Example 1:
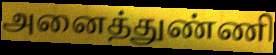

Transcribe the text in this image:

அனைத்துண்ணி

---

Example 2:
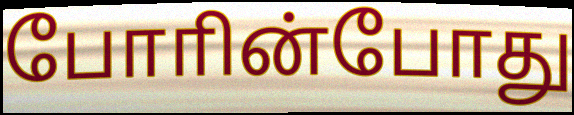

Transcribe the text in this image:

போரின்போது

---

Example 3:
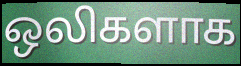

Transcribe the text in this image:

ஒலிகளாக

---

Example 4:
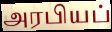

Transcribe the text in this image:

அரபியப்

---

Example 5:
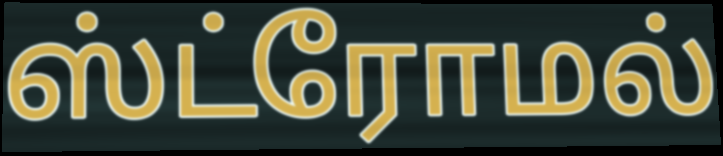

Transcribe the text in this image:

ஸ்ட்ரோமல்